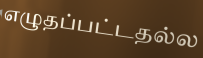
எழுதப்பட்டதல்ல